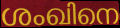
ശംഖിനെ